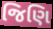
જિણિ